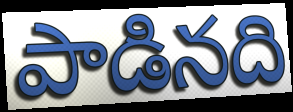
పాడినది